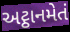
અટ્ઠાનમેતં